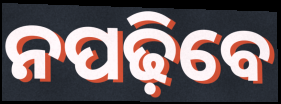
ନପଢ଼ିବେ